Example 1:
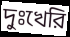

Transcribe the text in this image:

দুঃখেরি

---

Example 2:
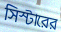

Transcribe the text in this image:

সিস্টারের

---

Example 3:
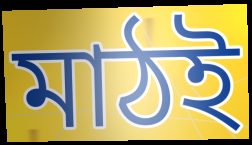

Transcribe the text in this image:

মাঠই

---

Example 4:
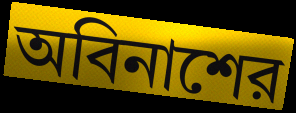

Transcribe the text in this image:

অবিনাশের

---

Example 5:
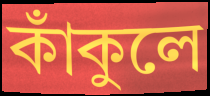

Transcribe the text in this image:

কাঁকুলে